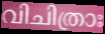
വിചിത്രാഃ